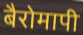
बैरोमापी